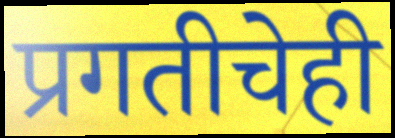
प्रगतीचेही